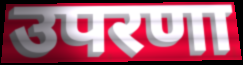
उपरणा